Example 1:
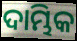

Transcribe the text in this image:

ଦାମ୍ଭିକ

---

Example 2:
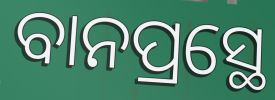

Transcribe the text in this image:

ବାନପ୍ରସ୍ଥେ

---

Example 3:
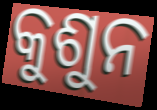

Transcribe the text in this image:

କୁଶୁନ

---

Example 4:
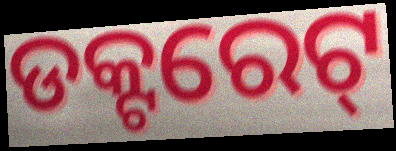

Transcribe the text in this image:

ଡକ୍ଟରେଟ୍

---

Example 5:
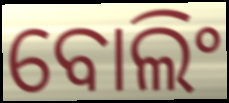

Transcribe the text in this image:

ବୋଲିଂ